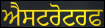
ਐਸਟਰੋਟਰਫ